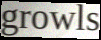
growls